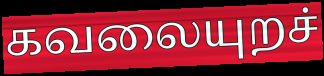
கவலையுறச்